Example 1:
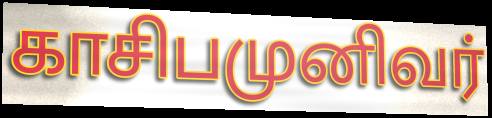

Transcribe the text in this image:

காசிபமுனிவர்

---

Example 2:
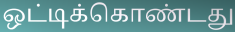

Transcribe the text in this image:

ஒட்டிக்கொண்டது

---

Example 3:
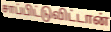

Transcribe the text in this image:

சாப்பிட்டுவிட்டான்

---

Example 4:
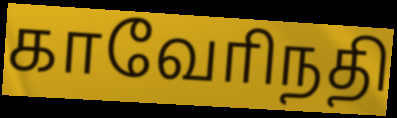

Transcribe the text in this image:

காவேரிநதி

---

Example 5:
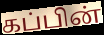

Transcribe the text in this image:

கப்பின்